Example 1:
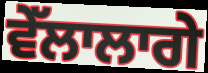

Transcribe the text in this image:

ਵੇੱਲਾਲਾਗੇ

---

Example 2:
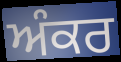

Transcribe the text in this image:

ਅੰਕਰ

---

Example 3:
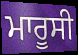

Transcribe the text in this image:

ਮਾਰੂਸੀ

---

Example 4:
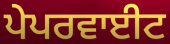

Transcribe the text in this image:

ਪੇਪਰਵਾਈਟ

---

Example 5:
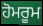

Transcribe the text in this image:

ਹੋਮਰੂਮ